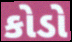
કોડો